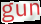
gun